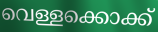
വെള്ളക്കൊക്ക്